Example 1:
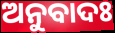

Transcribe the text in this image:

ଅନୁବାଦଃ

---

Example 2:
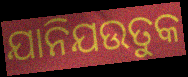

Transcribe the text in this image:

ଯାନିଯଉତୁକ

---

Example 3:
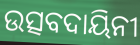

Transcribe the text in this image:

ଉତ୍ସବଦାୟିନୀ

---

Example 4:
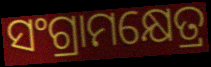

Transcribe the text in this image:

ସଂଗ୍ରାମକ୍ଷେତ୍ର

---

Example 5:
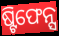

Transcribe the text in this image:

ଷ୍ଟିଫେନ୍ସ